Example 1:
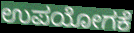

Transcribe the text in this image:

ಉಪಯೋಗಕೆ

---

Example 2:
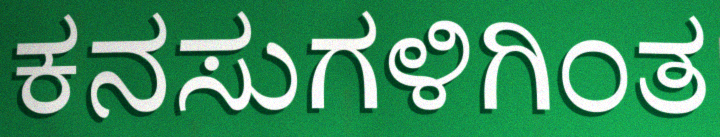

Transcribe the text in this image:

ಕನಸುಗಳಿಗಿಂತ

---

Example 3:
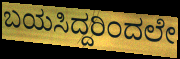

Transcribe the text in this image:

ಬಯಸಿದ್ದರಿಂದಲೇ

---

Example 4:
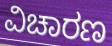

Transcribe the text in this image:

ವಿಚಾರಣ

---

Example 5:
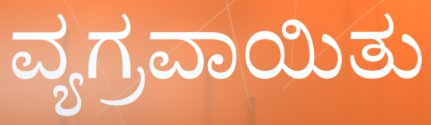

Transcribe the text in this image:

ವ್ಯಗ್ರವಾಯಿತು